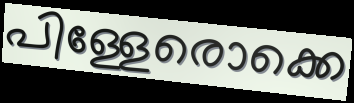
പിള്ളേരൊക്കെ